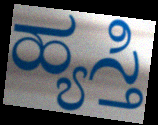
ಹ್ಯಸ್ತಿ